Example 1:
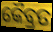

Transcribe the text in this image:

କୈବ୍ରତ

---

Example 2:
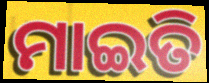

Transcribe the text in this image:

ମାଇତି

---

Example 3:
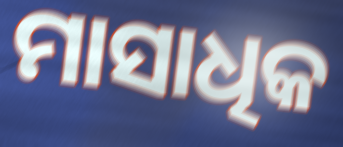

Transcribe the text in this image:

ମାସାଧିକ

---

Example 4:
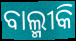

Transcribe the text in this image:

ବାଲ୍ମୀକି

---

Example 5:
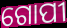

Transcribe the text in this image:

ଗୋପୀ